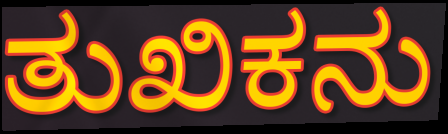
ತುಖಿಕನು